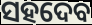
ସହଦେବ